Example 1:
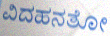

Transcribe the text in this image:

ವಿದಹನತೋ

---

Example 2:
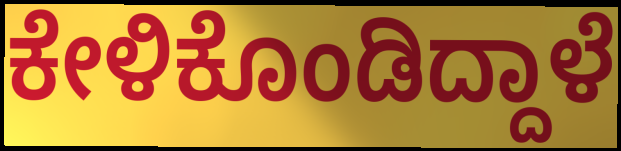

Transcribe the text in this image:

ಕೇಳಿಕೊಂಡಿದ್ದಾಳೆ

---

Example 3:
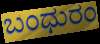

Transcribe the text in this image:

ಬಂಧುರಂ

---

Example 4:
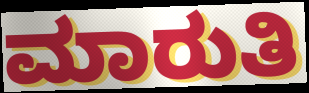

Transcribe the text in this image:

ಮಾರುತಿ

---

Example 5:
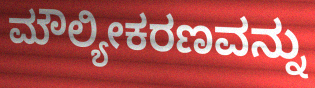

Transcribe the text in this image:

ಮೌಲ್ಯೀಕರಣವನ್ನು